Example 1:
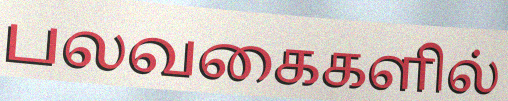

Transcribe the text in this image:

பலவகைகளில்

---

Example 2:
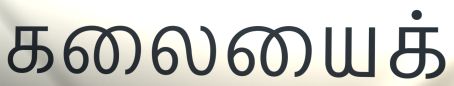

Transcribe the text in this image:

கலையைக்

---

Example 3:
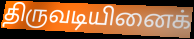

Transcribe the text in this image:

திருவடியினைக்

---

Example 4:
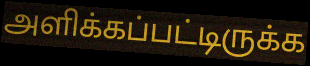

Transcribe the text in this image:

அளிக்கப்பட்டிருக்க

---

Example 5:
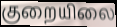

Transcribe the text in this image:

குறையிலை